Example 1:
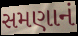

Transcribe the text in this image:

સમણાનં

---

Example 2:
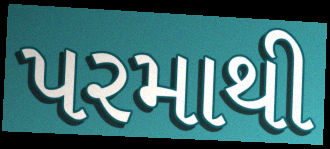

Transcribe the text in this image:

પરમાથી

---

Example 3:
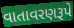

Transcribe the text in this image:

વાતાવરણરૂપે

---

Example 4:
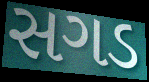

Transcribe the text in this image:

સગડ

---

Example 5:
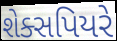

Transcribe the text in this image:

શેક્સપિયરે